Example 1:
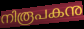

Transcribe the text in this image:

നിരൂപകനു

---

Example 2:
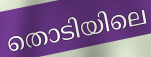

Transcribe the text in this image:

തൊടിയിലെ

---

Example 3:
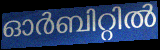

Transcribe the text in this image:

ഓർബിറ്റിൽ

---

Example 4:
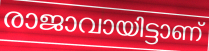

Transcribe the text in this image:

രാജാവായിട്ടാണ്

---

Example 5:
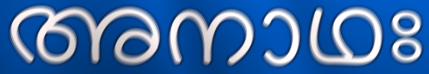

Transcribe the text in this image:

അനാഥഃ